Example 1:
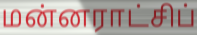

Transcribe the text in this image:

மன்னராட்சிப்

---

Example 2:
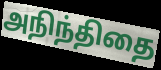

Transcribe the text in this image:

அநிந்திதை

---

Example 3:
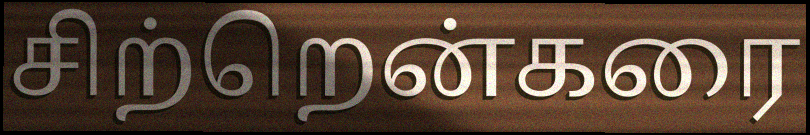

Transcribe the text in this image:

சிற்றென்கரை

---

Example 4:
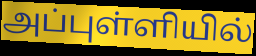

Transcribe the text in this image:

அப்புள்ளியில்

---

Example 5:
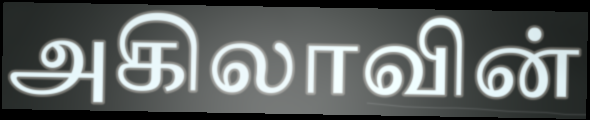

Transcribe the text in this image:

அகிலாவின்